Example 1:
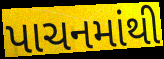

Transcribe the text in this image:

પાચનમાંથી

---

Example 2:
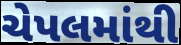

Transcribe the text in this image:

ચેપલમાંથી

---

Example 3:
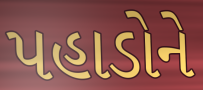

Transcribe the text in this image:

પહાડોને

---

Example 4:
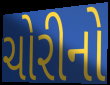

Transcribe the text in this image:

ચોરીનો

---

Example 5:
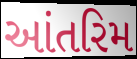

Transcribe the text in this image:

આંતરિમ